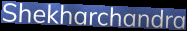
Shekharchandra